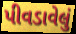
પીવડાવેલું